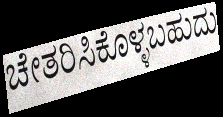
ಚೇತರಿಸಿಕೊಳ್ಳಬಹುದು